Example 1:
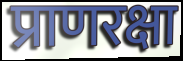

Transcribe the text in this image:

प्राणरक्षा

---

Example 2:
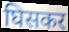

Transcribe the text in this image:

घिसकर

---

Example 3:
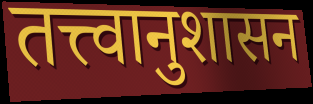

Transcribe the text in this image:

तत्त्वानुशासन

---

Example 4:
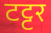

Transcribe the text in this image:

टट्टर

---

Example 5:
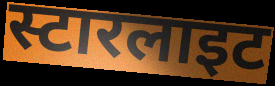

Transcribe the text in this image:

स्टारलाइट